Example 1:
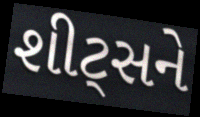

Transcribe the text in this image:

શીટ્સને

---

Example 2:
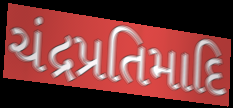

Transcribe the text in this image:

ચંદ્રપ્રતિમાદિ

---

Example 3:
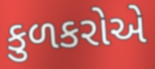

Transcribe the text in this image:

કુળકરોએ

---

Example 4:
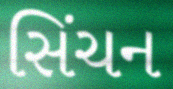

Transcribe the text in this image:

સિંચન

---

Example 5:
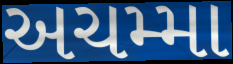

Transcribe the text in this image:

અચમ્મા